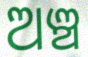
ଅଞ୍ଚ